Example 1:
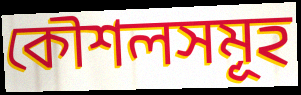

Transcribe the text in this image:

কৌশলসমূহ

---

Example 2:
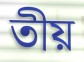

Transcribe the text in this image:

তীয়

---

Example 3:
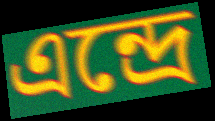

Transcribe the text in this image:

এন্দ্ৰে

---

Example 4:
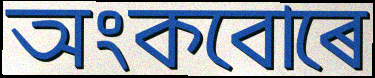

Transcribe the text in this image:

অংকবোৰে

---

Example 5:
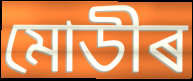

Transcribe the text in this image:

মোডীৰ